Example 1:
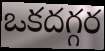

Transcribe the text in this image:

ఒకదగ్గర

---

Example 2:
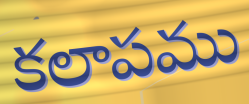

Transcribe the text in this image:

కలాపము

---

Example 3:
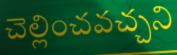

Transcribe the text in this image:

చెల్లించవచ్చని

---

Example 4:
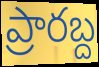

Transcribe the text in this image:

ప్రారబ్ద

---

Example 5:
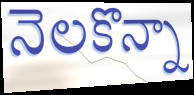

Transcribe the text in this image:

నెలకొన్నా